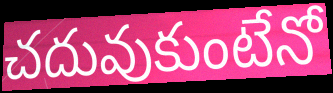
చదువుకుంటేనో